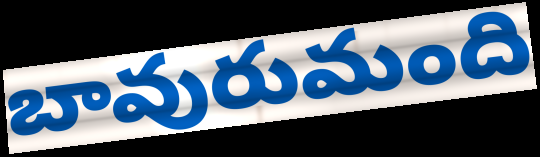
బావురుమంది